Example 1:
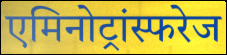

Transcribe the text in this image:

एमिनोट्रांस्फरेज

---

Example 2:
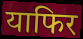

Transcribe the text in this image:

याफिर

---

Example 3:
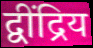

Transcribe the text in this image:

द्वींद्रिय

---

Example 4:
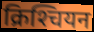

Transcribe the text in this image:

क्रिश्चियन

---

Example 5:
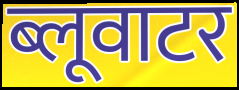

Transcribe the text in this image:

ब्लूवाटर